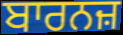
ਬਾਰਨਜ਼